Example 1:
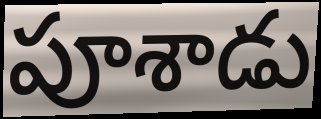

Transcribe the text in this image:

పూశాడు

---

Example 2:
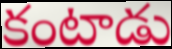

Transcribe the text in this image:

కంటాడు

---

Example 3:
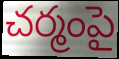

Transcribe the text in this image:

చర్మంపై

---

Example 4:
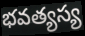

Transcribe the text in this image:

భవత్యస్య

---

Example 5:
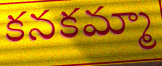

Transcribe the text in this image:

కనకమ్మా